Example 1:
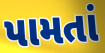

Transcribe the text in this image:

પામતાં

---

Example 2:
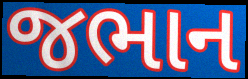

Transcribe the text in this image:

જભાન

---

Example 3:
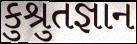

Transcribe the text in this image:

કુશ્રુતજ્ઞાન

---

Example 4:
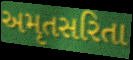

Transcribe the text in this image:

અમૃતસરિતા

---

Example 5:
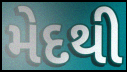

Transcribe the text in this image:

મેદથી